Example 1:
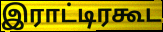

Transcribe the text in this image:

இராட்டிரகூட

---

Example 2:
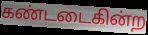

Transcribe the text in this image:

கண்டடைகின்ற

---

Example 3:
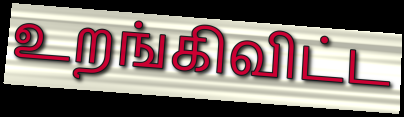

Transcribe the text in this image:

உறங்கிவிட்ட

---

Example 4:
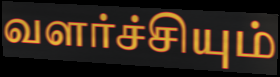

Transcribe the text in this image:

வளர்ச்சியும்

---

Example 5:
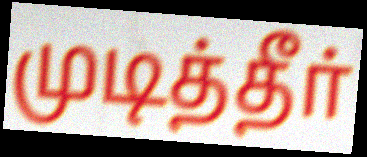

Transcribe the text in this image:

முடித்தீர்